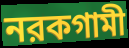
নরকগামী